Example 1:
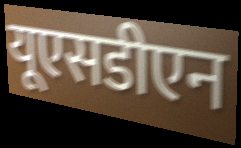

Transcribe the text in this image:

यूएसडीएन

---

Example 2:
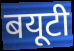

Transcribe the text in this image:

बयूटी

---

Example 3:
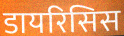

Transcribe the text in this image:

डायरिसिस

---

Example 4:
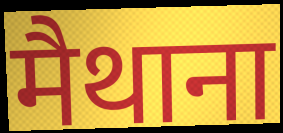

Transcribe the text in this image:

मैथाना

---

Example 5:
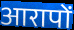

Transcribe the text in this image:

आरापों